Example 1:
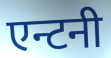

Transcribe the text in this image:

एन्टनी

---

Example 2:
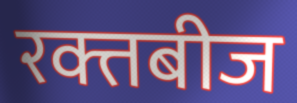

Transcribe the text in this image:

रक्तबीज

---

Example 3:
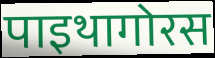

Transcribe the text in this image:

पाइथागोरस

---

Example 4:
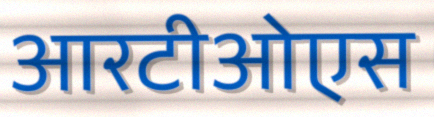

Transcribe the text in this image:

आरटीओएस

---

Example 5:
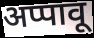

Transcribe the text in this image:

अप्पावू